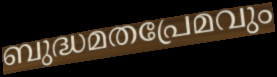
ബുദ്ധമതപ്രേമവും